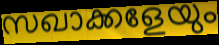
സഖാക്കളേയും